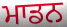
ਮਾਡਨ